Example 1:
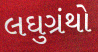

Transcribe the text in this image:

લઘુગ્રંથો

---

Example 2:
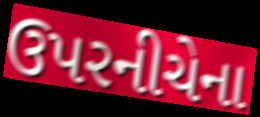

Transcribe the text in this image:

ઉપરનીચેના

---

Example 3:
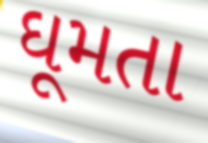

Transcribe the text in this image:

ઘૂમતા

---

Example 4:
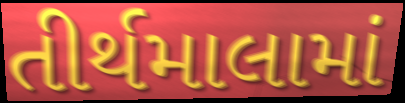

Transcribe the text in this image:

તીર્થમાલામાં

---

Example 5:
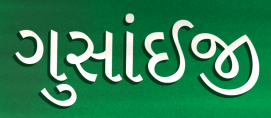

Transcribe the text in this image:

ગુસાંઈજી